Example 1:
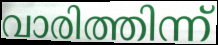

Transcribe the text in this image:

വാരിത്തിന്ന്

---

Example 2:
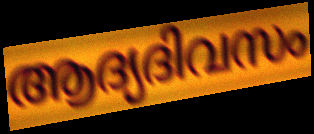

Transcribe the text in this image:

ആദ്യദിവസം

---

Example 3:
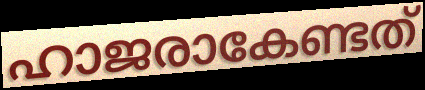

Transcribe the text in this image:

ഹാജരാകേണ്ടത്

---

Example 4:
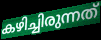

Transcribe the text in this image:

കഴിച്ചിരുന്നത്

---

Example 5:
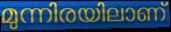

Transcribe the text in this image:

മുന്നിരയിലാണ്